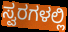
ಸ್ವರಗಳಲ್ಲಿ